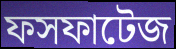
ফসফাটেজ